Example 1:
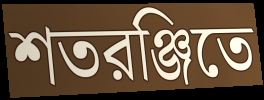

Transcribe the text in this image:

শতরঞ্জিতে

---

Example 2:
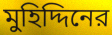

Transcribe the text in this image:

মুহিদ্দিনের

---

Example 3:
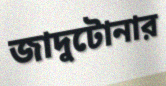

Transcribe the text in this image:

জাদুটোনার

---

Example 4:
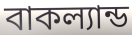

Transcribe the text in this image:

বাকল্যান্ড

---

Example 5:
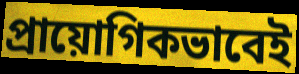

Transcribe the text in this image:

প্রায়োগিকভাবেই